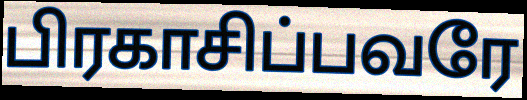
பிரகாசிப்பவரே